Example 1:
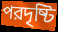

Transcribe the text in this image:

পরদৃষ্টি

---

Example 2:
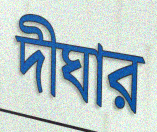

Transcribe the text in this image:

দীঘার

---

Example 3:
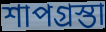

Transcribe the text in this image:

শাপগ্রস্তা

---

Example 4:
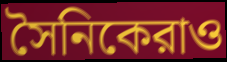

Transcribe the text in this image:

সৈনিকেরাও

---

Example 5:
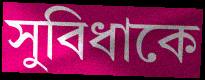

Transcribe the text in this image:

সুবিধাকে